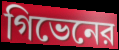
গিভেনের